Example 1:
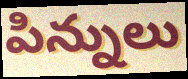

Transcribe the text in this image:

పిన్నులు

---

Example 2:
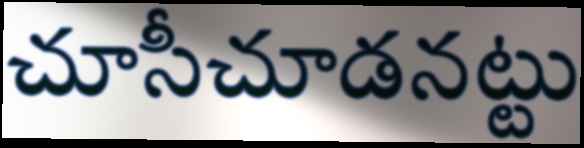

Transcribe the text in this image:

చూసీచూడనట్టు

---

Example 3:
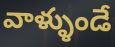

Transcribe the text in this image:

వాళ్ళుండే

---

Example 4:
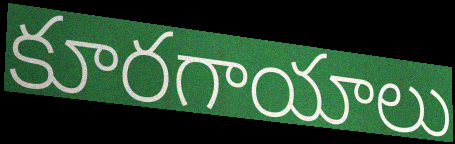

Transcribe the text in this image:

కూరగాయాలు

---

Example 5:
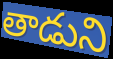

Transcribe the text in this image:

తాడుని